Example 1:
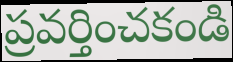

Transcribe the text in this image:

ప్రవర్తించకండి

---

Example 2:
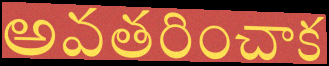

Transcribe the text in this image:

అవతరించాక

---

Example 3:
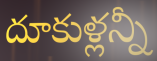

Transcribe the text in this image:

దూకుళ్లన్నీ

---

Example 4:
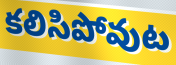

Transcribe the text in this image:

కలిసిపోవుట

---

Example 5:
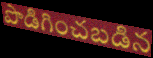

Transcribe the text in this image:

పొడిగించబడిన